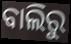
ବାଲିରୁ